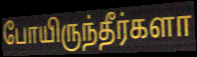
போயிருந்தீர்களா